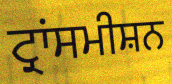
ਟ੍ਰਾਂਸਮੀਸ਼ਨ